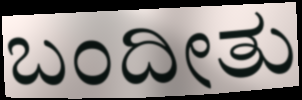
ಬಂದೀತು